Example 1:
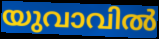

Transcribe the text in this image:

യുവാവിൽ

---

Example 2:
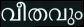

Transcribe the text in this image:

വീതവും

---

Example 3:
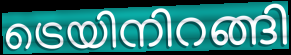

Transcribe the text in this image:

ട്രെയിനിറങ്ങി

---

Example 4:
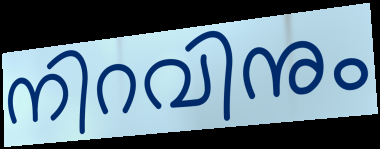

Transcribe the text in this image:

നിറവിനും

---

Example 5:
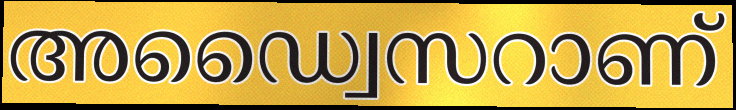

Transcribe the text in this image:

അഡ്വൈസറാണ്